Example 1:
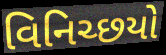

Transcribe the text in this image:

વિનિચ્છયો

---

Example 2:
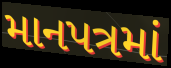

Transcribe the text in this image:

માનપત્રમાં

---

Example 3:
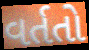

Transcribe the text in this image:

વર્તતો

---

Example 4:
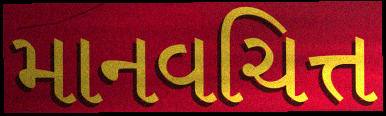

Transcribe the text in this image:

માનવચિત્ત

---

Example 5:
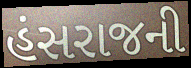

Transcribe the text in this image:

હંસરાજની